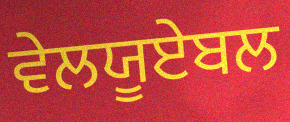
ਵੇਲਯੂਏਬਲ